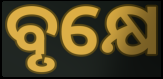
ବୃକ୍ଷେ